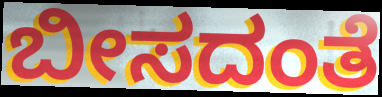
ಬೀಸದಂತೆ